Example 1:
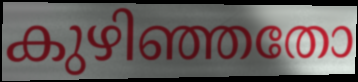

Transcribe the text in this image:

കുഴിഞ്ഞതോ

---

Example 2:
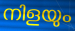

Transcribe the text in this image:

നിളയും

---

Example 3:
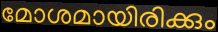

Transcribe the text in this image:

മോശമായിരിക്കും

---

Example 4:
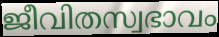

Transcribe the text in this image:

ജീവിതസ്വഭാവം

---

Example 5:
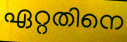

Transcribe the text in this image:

ഏറ്റതിനെ